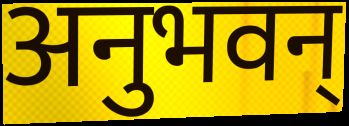
अनुभवन्